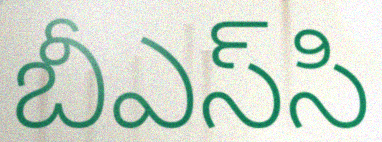
బీఎస్‌సి